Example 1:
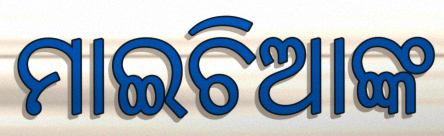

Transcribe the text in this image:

ମାଇଚିଆଙ୍କ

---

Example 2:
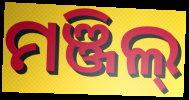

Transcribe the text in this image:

ମଞ୍ଜିଲ୍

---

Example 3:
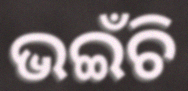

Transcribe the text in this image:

ଭଇଁଚି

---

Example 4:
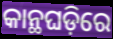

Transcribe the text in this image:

କାନ୍ଥଘଡ଼ିରେ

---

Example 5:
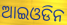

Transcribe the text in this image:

ଆଇଓଡିନ